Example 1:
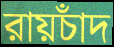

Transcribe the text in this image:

রায়চাঁদ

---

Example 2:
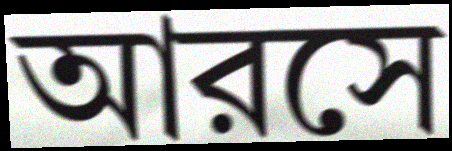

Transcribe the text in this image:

আরসে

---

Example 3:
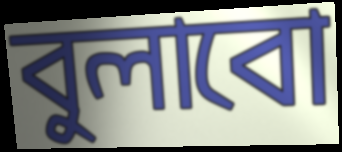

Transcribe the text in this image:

বুলাবো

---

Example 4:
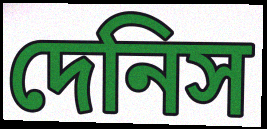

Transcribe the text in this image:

দেনিস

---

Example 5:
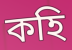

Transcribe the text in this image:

কহি